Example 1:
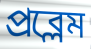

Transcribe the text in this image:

প্ৰব্লেম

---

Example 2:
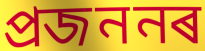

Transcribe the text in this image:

প্ৰজননৰ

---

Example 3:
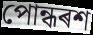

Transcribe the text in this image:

পোন্ধৰশ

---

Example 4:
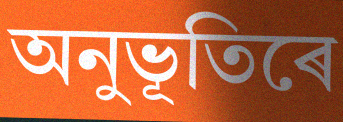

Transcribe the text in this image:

অনুভূতিৰে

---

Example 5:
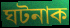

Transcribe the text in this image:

ঘটনাক